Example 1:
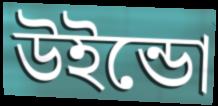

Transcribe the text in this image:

উইন্ডো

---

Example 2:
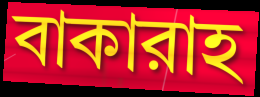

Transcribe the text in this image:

বাকারাহ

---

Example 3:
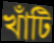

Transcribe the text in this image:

খাঁটি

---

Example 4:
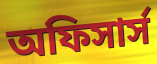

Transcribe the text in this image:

অফিসার্স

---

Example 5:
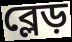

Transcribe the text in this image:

ব্লেড়